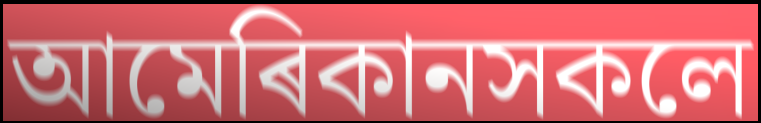
আমেৰিকানসকলে